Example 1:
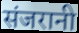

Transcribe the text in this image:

संजरानी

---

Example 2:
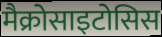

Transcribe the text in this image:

मैक्रोसाइटोसिस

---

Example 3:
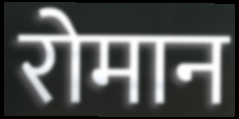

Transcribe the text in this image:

रोमान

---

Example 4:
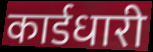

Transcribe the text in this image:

कार्डधारी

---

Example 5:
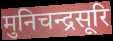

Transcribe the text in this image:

मुनिचन्द्रसूरि